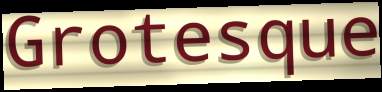
Grotesque